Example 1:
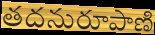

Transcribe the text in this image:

తదనురూపాణి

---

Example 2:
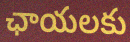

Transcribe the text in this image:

ఛాయలకు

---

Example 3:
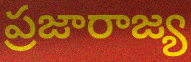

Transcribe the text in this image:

ప్రజారాజ్య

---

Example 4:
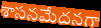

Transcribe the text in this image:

శాసనమేదనగా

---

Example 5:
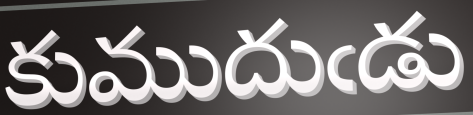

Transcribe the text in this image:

కుముదుఁడు